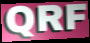
QRF